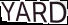
YARD